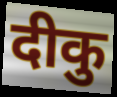
दीकु